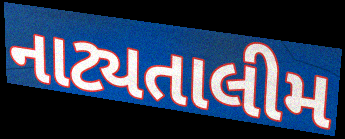
નાટ્યતાલીમ